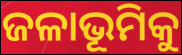
ଜଳାଭୂମିକୁ